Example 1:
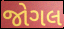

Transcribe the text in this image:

જોગલ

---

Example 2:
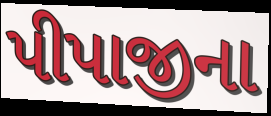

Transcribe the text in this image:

પીપાજીના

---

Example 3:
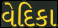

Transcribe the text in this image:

વેદિકા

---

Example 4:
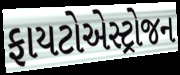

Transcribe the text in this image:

ફાયટોએસ્ટ્રોજન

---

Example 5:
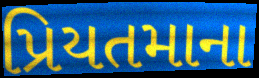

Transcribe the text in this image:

પ્રિયતમાના